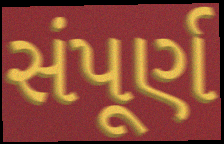
સંપૂર્ણ